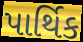
પાર્થિક